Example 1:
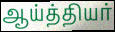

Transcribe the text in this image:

ஆய்த்தியர்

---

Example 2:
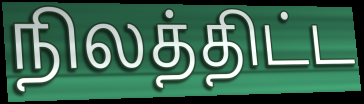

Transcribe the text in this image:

நிலத்திட்ட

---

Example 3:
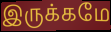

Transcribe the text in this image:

இருக்கமே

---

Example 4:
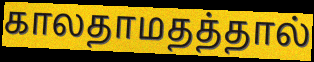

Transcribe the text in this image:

காலதாமதத்தால்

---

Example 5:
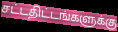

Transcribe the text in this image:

சட்டதிட்டங்களுக்கு